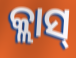
କ୍ଲାସ୍